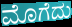
ಮೊಗೆದು